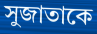
সুজাতাকে